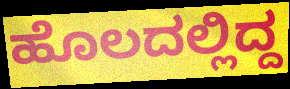
ಹೊಲದಲ್ಲಿದ್ದ